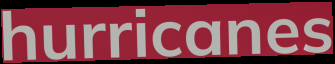
hurricanes